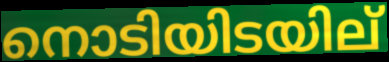
നൊടിയിടയില്